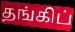
தங்கிப்